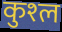
कुश्ल